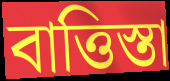
বাত্তিস্তা